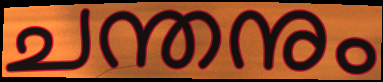
ചന്തനും